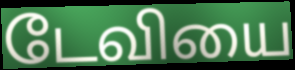
டேவியை